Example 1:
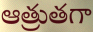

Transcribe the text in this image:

ఆత్రుతగా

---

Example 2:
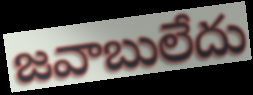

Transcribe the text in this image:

జవాబులేదు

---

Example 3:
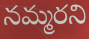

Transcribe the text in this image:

నమ్మరని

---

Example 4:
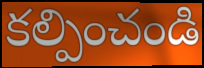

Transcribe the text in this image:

కల్పించండి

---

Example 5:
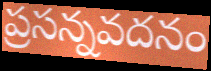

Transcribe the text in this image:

ప్రసన్నవదనం